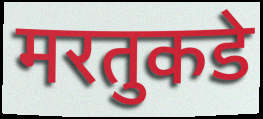
मरतुकडे